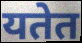
यतेत